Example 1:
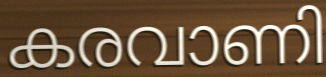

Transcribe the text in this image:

കരവാണി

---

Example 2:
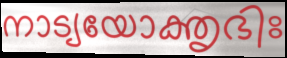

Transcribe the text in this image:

നാട്യയോക്തൃഭിഃ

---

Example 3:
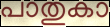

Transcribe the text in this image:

പാതുകാ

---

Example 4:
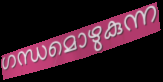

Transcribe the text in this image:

ഗന്ധമൊഴുകുന്ന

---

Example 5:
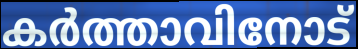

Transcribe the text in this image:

കർത്താവിനോട്